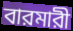
বারমারী